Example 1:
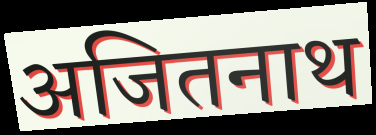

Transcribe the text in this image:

अजितनाथ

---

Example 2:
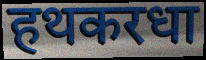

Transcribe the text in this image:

हथकरधा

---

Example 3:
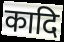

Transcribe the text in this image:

कादि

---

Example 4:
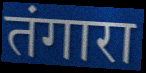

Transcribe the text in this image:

तंगारा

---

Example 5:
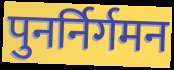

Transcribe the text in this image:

पुनर्निर्गमन